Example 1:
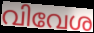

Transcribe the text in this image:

വിവേശ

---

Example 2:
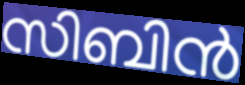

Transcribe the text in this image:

സിബിൻ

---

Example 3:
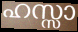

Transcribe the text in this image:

ഹസ്സാ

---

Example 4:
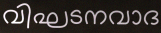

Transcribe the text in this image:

വിഘടനവാദ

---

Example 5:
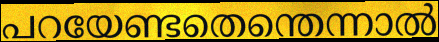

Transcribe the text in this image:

പറയേണ്ടതെന്തെന്നാൽ